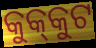
କୁକ୍‍କୁଟ